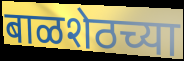
बाळशेठच्या